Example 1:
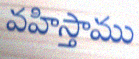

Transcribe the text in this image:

వహిస్తాము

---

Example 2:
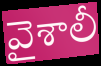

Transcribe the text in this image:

వైశాలీ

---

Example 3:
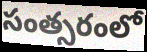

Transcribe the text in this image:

సంత్సరంలో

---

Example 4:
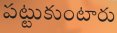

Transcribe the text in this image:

పట్టుకుంటారు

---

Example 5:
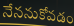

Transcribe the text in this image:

నేననుకోవడం